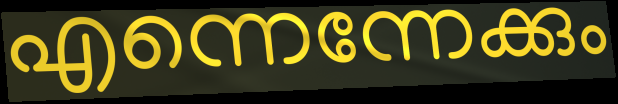
എന്നെന്നേക്കും